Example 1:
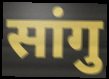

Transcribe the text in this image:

सांगु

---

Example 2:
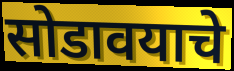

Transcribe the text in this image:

सोडावयाचे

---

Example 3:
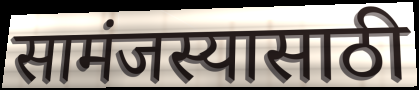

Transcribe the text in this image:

सामंजस्यासाठी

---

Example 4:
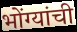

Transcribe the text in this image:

भोंग्यांची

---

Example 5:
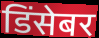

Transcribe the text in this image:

डिंसेबर